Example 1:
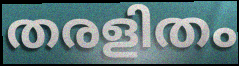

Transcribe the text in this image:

തരളിതം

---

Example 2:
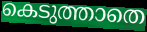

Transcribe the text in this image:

കെടുത്താതെ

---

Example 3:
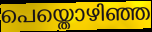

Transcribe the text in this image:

പെയ്തൊഴിഞ്ഞ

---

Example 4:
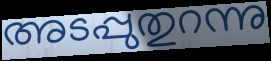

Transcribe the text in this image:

അടപ്പുതുറന്നു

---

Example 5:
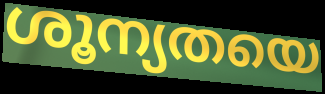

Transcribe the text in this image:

ശൂന്യതയെ